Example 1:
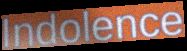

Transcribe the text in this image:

Indolence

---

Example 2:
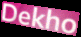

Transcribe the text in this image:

Dekho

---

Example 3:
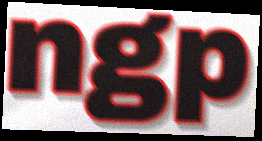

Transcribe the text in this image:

ngp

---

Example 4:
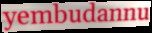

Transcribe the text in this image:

yembudannu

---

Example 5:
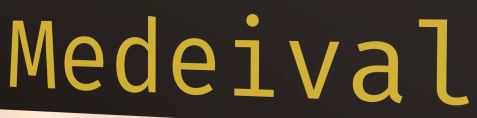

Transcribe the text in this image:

Medeival